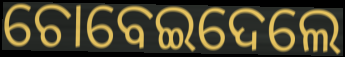
ଚୋବେଇଦେଲେ